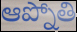
ఆప్నోతి